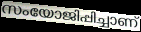
സംയോജിപ്പിച്ചാണ്